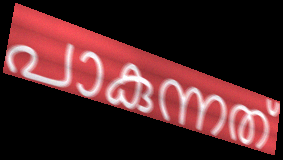
പാകുന്നത്